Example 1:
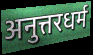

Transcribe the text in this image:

अनुत्तरधर्म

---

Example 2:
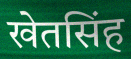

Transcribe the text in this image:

खेतसिंह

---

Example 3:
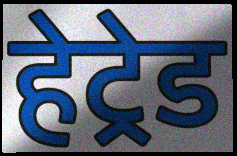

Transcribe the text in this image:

हेट्रेड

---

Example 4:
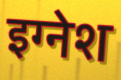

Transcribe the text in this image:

इग्नेश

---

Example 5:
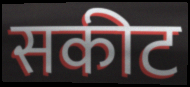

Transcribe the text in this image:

सकीट